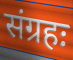
संग्रहः